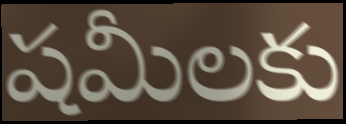
షమీలకు